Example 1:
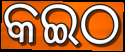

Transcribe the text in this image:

କଇଠ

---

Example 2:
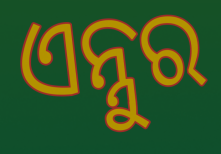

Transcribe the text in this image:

ଏନ୍ନୁର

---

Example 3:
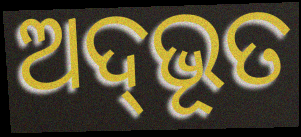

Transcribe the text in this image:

ଅଦ୍‌ଭୂତ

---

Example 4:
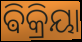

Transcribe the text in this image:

ଵିକ୍ରିୟା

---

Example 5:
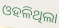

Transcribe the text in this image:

ଓହଳିଥିଲା